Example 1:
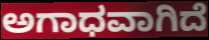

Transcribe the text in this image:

ಅಗಾಧವಾಗಿದೆ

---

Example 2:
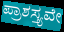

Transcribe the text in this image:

ಪ್ರಾಶಸ್ತ್ಯವೇ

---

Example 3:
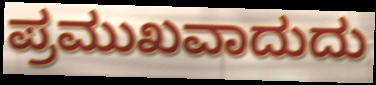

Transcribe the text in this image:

ಪ್ರಮುಖವಾದುದು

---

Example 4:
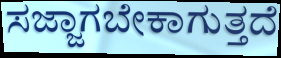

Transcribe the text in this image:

ಸಜ್ಜಾಗಬೇಕಾಗುತ್ತದೆ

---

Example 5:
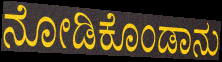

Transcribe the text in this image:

ನೋಡಿಕೊಂಡಾನು